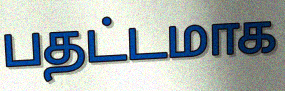
பதட்டமாக